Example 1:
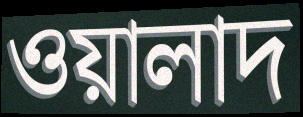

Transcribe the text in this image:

ওয়ালাদ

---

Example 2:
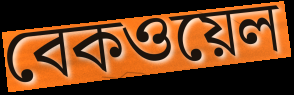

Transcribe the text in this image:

বেকওয়েল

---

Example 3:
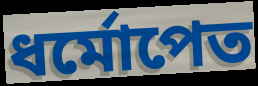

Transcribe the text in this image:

ধর্মোপেত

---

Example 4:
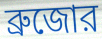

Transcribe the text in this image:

ব্রুজোর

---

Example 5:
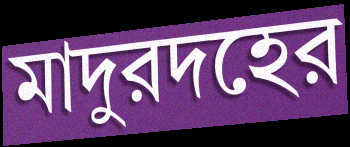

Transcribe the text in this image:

মাদুরদহের